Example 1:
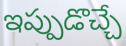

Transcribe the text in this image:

ఇప్పుడొచ్చే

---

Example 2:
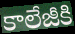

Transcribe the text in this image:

కాలేజీకి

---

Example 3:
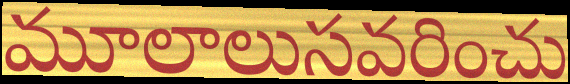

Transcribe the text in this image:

మూలాలుసవరించు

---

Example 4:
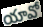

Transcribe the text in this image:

యావో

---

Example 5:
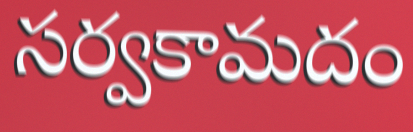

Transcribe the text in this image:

సర్వకామదం